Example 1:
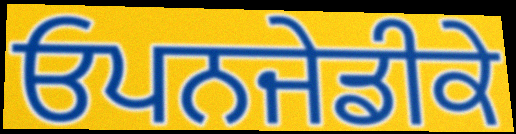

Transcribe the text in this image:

ਓਪਨਜੇਡੀਕੇ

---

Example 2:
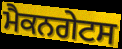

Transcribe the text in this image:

ਮੈਕਨਗੇਟਸ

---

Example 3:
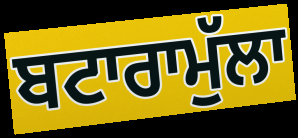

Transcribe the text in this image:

ਬਟਾਰਾਮੁੱਲਾ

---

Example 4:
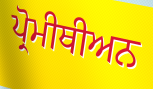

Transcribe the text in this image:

ਪ੍ਰੋਮੀਥੀਅਨ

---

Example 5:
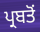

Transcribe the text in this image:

ਪ੍ਰਬਤੋਂ